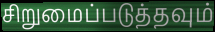
சிறுமைப்படுத்தவும்